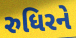
રુધિરને